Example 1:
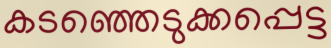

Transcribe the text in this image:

കടഞ്ഞെടുക്കപ്പെട്ട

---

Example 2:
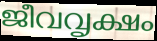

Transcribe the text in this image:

ജീവവൃക്ഷം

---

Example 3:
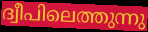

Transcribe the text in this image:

ദ്വീപിലെത്തുന്നു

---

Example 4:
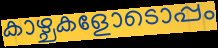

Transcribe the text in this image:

കാഴ്ചകളോടൊപ്പം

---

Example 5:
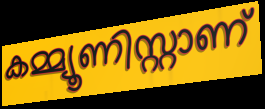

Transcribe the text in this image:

കമ്മ്യൂണിസ്റ്റാണ്